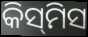
କିସ୍‌ମିସ